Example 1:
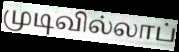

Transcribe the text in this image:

முடிவில்லாப்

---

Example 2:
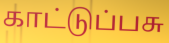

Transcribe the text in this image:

காட்டுப்பசு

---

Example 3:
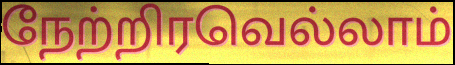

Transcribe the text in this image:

நேற்றிரவெல்லாம்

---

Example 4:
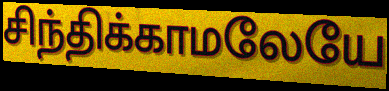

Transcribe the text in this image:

சிந்திக்காமலேயே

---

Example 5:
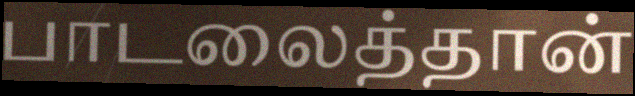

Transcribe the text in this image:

பாடலைத்தான்